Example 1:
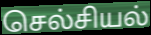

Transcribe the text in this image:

செல்சியல்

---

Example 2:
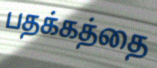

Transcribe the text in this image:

பதக்கத்தை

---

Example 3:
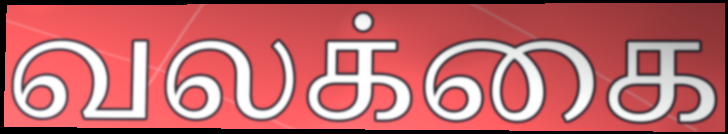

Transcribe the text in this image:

வலக்கை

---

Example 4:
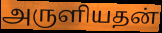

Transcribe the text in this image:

அருளியதன்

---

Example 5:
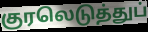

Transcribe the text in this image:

குரலெடுத்துப்